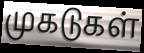
முகடுகள்